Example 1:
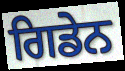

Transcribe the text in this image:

ਗਿਡੇਨ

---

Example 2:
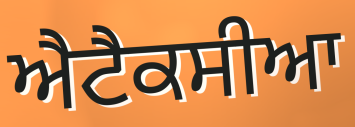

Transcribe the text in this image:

ਐਟੈਕਸੀਆ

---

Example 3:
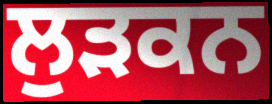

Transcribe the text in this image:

ਲੁੜਕਨ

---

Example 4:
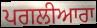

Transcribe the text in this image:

ਪਗਲੀਆਰਾ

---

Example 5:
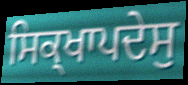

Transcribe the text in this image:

ਸਿਕ੍ਖਾਪਦੇਸੁ